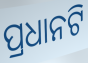
ପ୍ରଧାନଟି